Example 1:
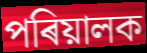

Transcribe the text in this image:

পৰিয়ালক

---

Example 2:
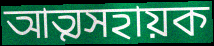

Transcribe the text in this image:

আত্মসহায়ক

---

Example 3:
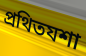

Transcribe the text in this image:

প্ৰথিতযশা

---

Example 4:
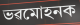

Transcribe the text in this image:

ভৱমোহনক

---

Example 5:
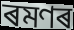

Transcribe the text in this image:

ৰমণৰ